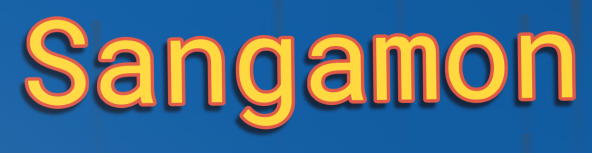
Sangamon